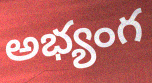
అభ్యంగ